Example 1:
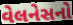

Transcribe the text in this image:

વેલનેસનો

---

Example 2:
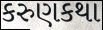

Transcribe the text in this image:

કરુણકથા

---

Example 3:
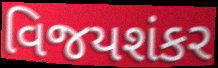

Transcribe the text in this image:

વિજયશંકર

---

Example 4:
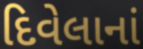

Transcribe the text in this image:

દિવેલાનાં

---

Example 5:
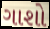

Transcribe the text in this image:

ગાશો